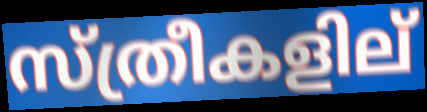
സ്ത്രീകളില്